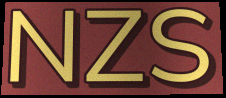
NZS